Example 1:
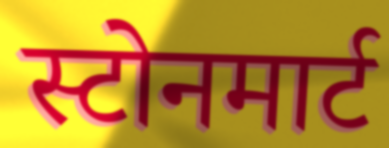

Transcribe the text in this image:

स्टोनमार्ट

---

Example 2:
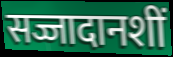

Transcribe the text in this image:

सज्जादानशीं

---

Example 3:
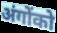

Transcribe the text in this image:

अंगोंको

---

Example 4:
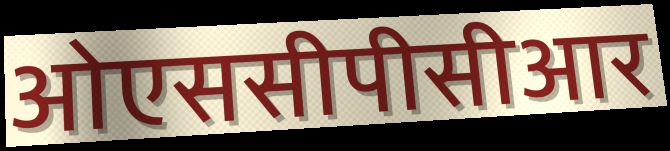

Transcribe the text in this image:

ओएससीपीसीआर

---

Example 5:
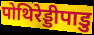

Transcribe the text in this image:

पोथिरेड्डीपाडु